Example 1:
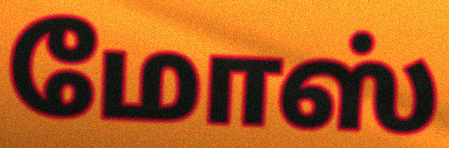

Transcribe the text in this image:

மோஸ்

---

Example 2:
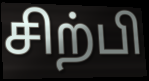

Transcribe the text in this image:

சிற்பி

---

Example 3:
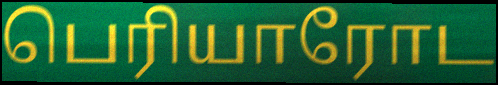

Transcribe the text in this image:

பெரியாரோட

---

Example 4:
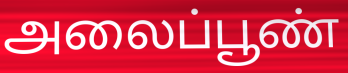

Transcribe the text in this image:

அலைப்பூண்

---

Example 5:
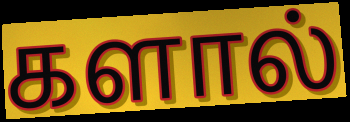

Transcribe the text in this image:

களால்